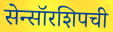
सेन्सॉरशिपची